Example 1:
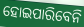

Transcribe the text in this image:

ହୋଇପାରିବେନି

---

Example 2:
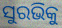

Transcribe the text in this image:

ସୁରଭିକୁ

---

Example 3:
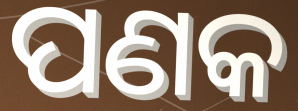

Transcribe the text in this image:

ପଣକ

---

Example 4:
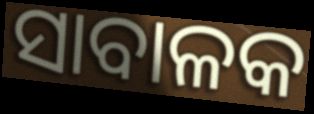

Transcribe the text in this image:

ସାବାଳକ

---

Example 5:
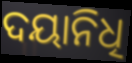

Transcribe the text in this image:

ଦୟାନିଧି